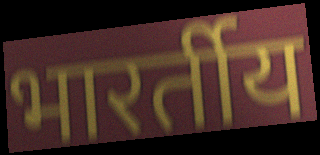
भारर्तीय